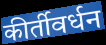
कीर्तीवर्धन